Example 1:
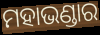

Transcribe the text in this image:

ମହାଭଣ୍ଡାର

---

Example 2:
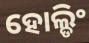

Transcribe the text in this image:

ହୋଲ୍ଡିଂ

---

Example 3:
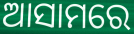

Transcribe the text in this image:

ଆସାମରେ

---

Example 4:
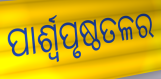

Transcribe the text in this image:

ପାର୍ଶ୍ଵପୃଷ୍ଠତଳର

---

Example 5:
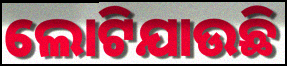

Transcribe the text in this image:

ଲୋଟିଯାଉଛି